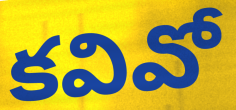
కవివో